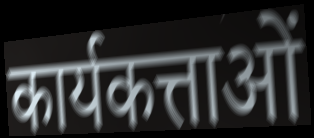
कार्यकत्ताओं